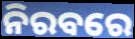
ନିରବରେ